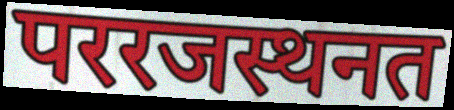
पररजस्थनत